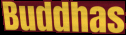
Buddhas